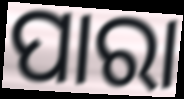
ପାରା